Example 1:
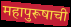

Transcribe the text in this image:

महापुरूषाची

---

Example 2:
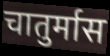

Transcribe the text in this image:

चातुर्मास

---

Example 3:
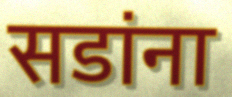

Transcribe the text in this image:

सडांना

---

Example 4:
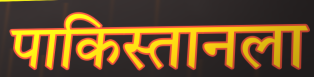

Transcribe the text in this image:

पाकिस्तानला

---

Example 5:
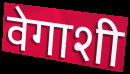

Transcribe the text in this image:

वेगाशी